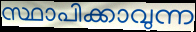
സ്ഥാപിക്കാവുന്ന